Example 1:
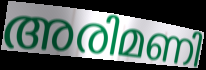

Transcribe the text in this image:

അരിമണി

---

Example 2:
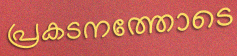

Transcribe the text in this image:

പ്രകടനത്തോടെ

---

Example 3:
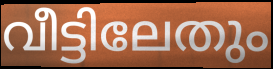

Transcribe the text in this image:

വീട്ടിലേതും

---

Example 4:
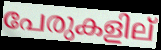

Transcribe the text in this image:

പേരുകളില്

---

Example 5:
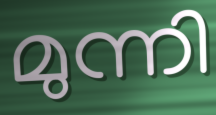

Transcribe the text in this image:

മുന്നി